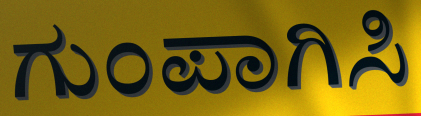
ಗುಂಪಾಗಿಸಿ